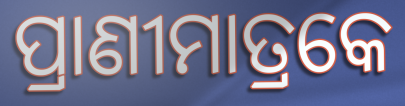
ପ୍ରାଣୀମାତ୍ରକେ